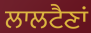
ਲਾਲਟੈਣਾਂ